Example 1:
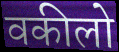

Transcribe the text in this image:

वकीलो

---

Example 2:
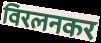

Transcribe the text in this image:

विरलनकर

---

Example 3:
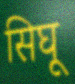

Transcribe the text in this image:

सिघू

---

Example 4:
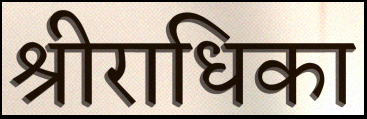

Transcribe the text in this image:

श्रीराधिका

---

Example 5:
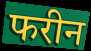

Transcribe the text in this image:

फरीन